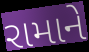
રામાને